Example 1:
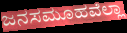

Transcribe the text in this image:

ಜನಸಮೂಹವೆಲ್ಲಾ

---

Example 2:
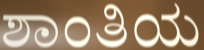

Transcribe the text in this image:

ಶಾಂತಿಯ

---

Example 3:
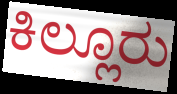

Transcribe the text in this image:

ಕಿಲ್ಲೂರು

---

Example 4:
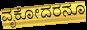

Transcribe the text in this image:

ವೃಕೋದರನೂ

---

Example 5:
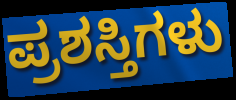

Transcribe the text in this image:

ಪ್ರಶಸ್ತಿಗಳು